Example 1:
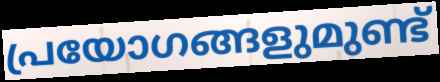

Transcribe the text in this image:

പ്രയോഗങ്ങളുമുണ്ട്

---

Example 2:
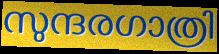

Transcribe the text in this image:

സുന്ദരഗാത്രി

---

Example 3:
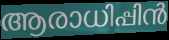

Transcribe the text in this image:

ആരാധിപ്പിൻ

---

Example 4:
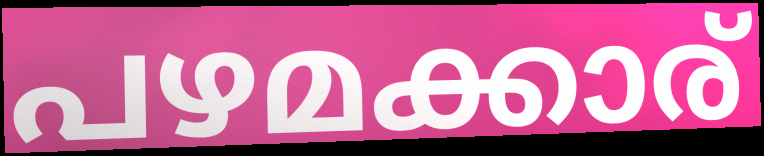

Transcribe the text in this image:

പഴമക്കാര്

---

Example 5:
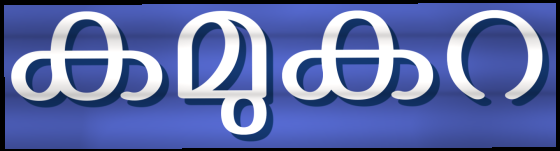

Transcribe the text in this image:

കമുകറ